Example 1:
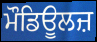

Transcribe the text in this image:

ਮੌਡਿਊਲਜ਼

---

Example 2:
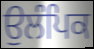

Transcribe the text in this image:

ਉਲੰਪਿਕ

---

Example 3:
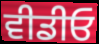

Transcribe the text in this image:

ਵੀਡੀਓ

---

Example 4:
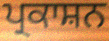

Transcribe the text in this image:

ਪ੍ਰਕਾਸ਼ਨ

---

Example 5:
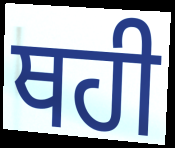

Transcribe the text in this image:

ਥਹੀ